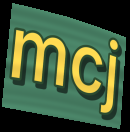
mcj